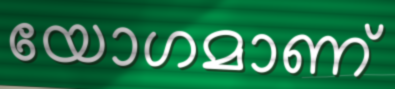
യോഗമാണ്